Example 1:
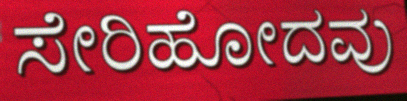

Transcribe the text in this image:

ಸೇರಿಹೋದವು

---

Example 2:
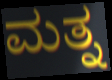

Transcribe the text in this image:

ಮತ್ನ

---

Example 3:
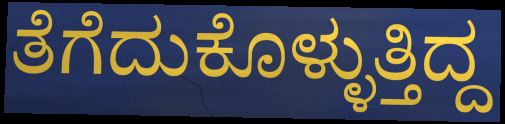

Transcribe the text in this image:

ತೆಗೆದುಕೊಳ್ಳುತ್ತಿದ್ದ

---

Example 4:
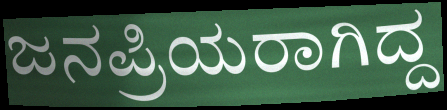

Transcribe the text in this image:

ಜನಪ್ರಿಯರಾಗಿದ್ದ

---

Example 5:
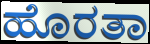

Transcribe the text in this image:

ಹೊರತಾ